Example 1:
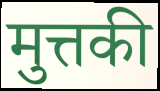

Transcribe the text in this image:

मुत्तकी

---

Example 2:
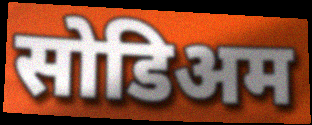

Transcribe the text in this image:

सोडिअम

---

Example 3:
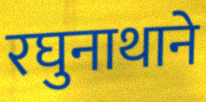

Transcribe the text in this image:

रघुनाथाने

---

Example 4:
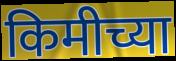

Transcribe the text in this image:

किमीच्या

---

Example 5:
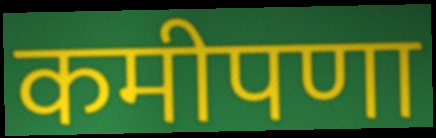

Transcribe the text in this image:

कमीपणा